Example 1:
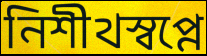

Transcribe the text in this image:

নিশীথস্বপ্নে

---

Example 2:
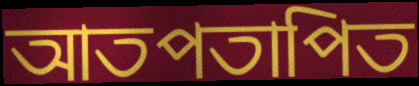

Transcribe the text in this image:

আতপতাপিত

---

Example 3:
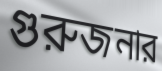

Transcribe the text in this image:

গুরুজনার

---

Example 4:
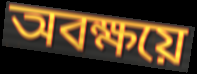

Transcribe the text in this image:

অবক্ষয়ে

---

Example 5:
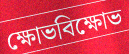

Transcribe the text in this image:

ক্ষোভবিক্ষোভ